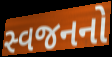
સ્વજનનો